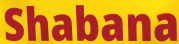
Shabana